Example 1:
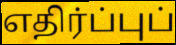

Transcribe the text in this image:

எதிர்ப்புப்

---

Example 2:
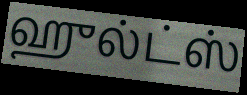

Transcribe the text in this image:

ஹுல்ட்ஸ்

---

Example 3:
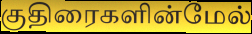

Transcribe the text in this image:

குதிரைகளின்மேல்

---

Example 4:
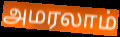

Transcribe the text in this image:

அமரலாம்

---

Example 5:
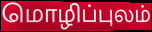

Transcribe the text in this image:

மொழிப்புலம்